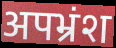
अपभ्रंश